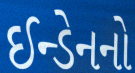
ઈન્ડેનનો